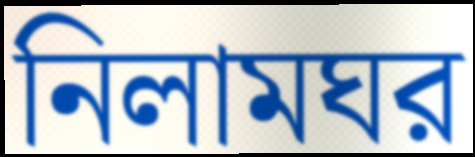
নিলামঘর